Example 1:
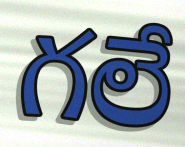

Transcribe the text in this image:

గలే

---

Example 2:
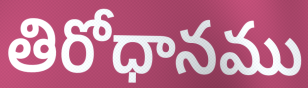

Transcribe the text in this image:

తిరోధానము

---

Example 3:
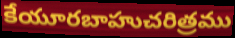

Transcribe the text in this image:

కేయూరబాహుచరిత్రము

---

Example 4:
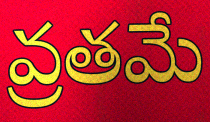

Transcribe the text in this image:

వ్రతమే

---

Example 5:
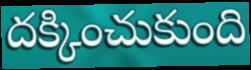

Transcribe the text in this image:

దక్కించుకుంది